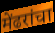
मेंढरांचा